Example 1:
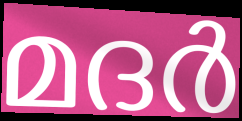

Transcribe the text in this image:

മദർ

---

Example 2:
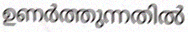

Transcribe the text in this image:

ഉണർത്തുന്നതിൽ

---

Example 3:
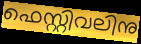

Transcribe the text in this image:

ഫെസ്റ്റിവലിനു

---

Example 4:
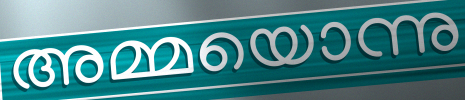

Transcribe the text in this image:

അമ്മയൊന്നു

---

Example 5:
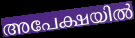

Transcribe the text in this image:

അപേക്ഷയിൽ